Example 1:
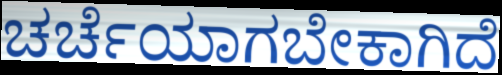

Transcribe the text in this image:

ಚರ್ಚೆಯಾಗಬೇಕಾಗಿದೆ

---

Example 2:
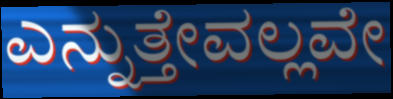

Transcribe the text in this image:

ಎನ್ನುತ್ತೇವಲ್ಲವೇ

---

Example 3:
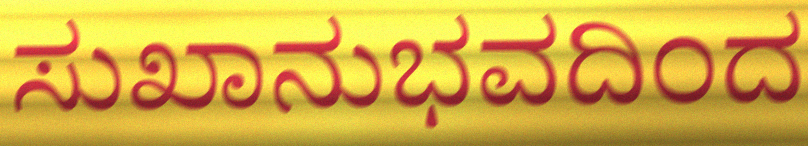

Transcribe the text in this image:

ಸುಖಾನುಭವದಿಂದ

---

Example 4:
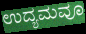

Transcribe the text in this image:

ಉದ್ಯಮವೂ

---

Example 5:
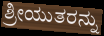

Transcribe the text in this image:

ಶ್ರೀಯುತರನ್ನು